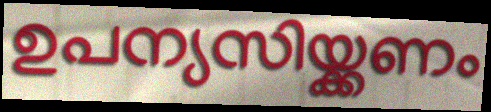
ഉപന്യസിയ്ക്കണം